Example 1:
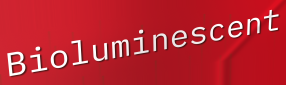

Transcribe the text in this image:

Bioluminescent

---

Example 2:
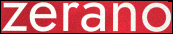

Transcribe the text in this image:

zerano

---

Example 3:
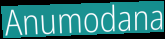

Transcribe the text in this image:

Anumodana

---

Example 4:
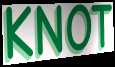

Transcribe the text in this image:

KNOT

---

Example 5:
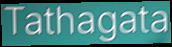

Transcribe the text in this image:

Tathagata